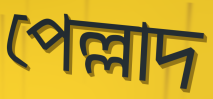
পেল্লাদ